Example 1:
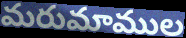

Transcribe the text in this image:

మరుమాముల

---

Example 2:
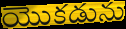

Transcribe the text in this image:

యొకడును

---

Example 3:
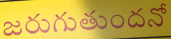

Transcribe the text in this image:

జరుగుతుందనో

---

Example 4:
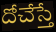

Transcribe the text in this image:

దోచేస్తే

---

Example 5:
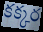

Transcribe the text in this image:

కక్కర